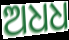
ଅଧଧ